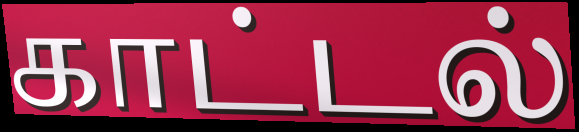
காட்டல்